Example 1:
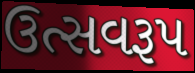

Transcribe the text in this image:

ઉત્સવરૂપ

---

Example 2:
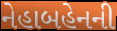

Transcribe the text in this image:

નેહાબહેનની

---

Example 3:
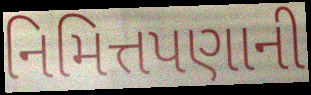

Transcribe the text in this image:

નિમિત્તપણાની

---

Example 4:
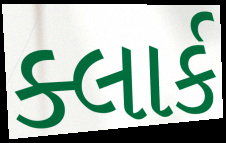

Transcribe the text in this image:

ક્લાર્ક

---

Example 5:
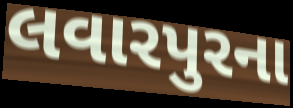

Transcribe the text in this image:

લવારપુરના